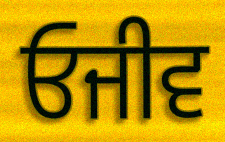
ਓਜੀਵ